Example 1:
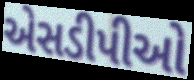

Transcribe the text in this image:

એસડીપીઓ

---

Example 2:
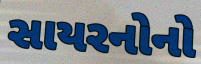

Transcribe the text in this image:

સાયરનોનો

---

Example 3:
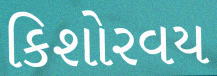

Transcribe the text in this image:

કિશોરવય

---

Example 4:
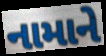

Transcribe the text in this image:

નામાને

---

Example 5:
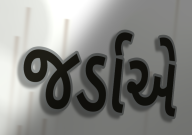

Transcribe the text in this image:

જર્ડાએ